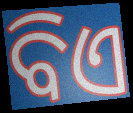
ବିଏ